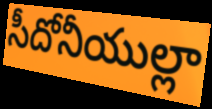
సీదోనీయుల్లా